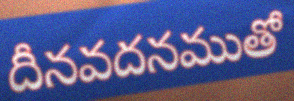
దీనవదనముతో